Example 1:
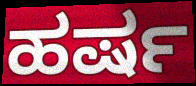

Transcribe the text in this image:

ಹರ್ಷ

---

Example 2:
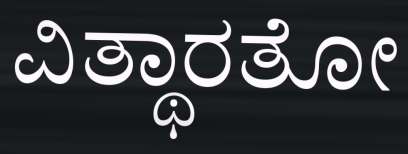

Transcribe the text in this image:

ವಿತ್ಥಾರತೋ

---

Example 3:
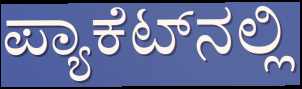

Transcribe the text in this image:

ಪ್ಯಾಕೆಟ್‌ನಲ್ಲಿ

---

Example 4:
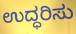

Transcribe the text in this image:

ಉದ್ಧರಿಸು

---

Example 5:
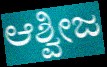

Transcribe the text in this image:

ಆಶ್ವೀಜ